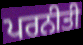
ਪਰਨੀਤੀ